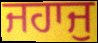
ਜਹਾਜੁ